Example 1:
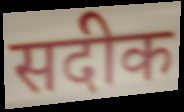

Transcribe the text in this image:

सदीक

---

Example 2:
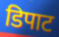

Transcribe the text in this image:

डिपाट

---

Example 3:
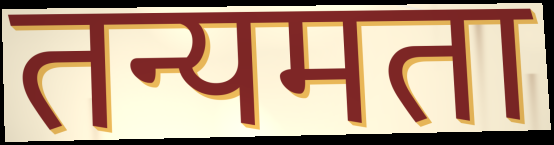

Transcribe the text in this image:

तन्यमता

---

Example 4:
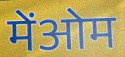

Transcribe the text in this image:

मेंओम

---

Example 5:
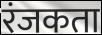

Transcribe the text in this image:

रंजकता